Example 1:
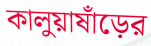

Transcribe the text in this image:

কালুয়াষাঁড়ের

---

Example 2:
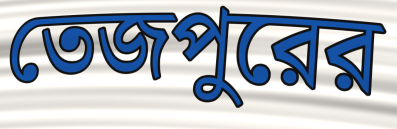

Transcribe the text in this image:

তেজপুরের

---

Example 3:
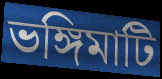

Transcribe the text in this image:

ভঙ্গিমাটি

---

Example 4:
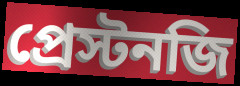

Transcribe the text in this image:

প্রেস্টনজি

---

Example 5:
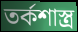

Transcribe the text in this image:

তর্কশাস্ত্র